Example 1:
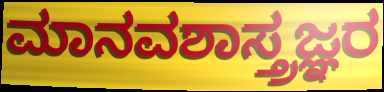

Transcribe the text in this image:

ಮಾನವಶಾಸ್ತ್ರಜ್ಞರ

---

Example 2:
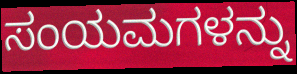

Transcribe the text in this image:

ಸಂಯಮಗಳನ್ನು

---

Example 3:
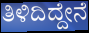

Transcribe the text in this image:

ತಿಳಿದಿದ್ದೇನೆ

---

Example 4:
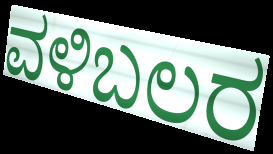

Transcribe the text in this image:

ವಳಿಬಲರ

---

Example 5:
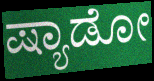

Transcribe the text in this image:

ಷ್ಯಾಡೋ